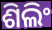
ଶିଲିଂ